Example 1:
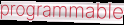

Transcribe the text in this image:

programmable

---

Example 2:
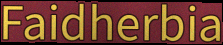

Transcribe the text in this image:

Faidherbia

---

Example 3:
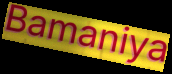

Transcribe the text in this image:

Bamaniya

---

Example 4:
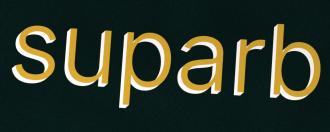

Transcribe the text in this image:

suparb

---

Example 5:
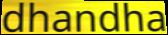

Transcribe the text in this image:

dhandha